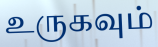
உருகவும்